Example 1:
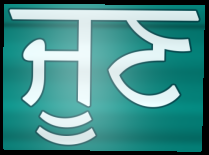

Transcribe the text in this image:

ਜੂਣ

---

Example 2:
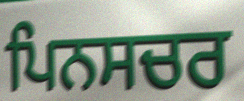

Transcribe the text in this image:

ਪਿਨਸਚਰ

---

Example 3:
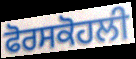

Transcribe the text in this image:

ਫੋਰਸਕੋਹਲੀ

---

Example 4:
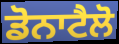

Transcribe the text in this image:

ਡੋਨਾਟੈਲੋ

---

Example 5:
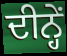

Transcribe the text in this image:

ਦੀਨ੍ਹੇਂ